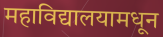
महाविद्यालयामधून